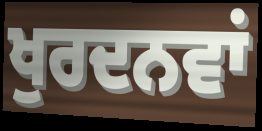
ਖੁਰਦਨਵਾਂ